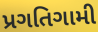
પ્રગતિગામી